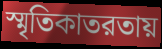
স্মৃতিকাতরতায়